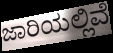
ಜಾರಿಯಲ್ಲಿವೆ